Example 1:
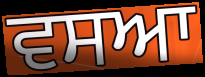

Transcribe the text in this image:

ਵਸਆ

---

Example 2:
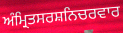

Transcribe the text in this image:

ਅੰਮ੍ਰਿਤਸਰਸ਼ਨਿਚਰਵਾਰ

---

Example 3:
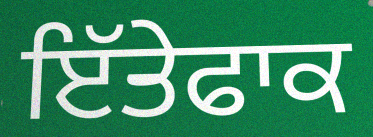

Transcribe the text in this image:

ਇੱਤੇਫਾਕ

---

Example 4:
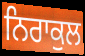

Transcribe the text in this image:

ਨਿਰਾਕੁਲ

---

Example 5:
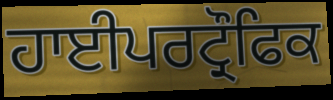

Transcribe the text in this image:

ਹਾਈਪਰਟ੍ਰੌਫਿਕ